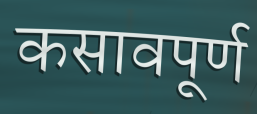
कसावपूर्ण